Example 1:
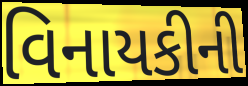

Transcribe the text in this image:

વિનાયકીની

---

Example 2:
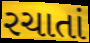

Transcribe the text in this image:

રચાતાં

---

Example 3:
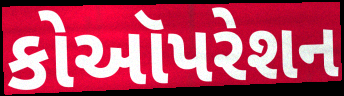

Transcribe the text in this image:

કોઑપરેશન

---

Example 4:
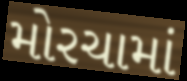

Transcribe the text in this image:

મોરચામાં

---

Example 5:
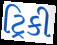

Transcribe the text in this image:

ટ્રિકી